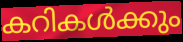
കറികൾക്കും